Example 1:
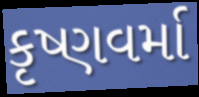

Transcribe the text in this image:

કૃષ્ણવર્મા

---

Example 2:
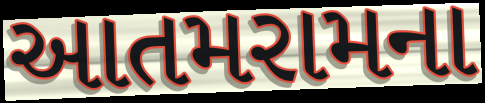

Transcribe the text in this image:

આતમરામના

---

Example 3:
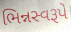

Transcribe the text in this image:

ભિન્નસ્વરૂપે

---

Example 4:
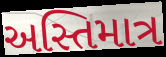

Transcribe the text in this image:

અસ્તિમાત્ર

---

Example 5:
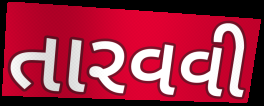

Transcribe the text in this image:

તારવવી